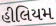
હીલિયમ